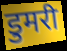
डुमरी